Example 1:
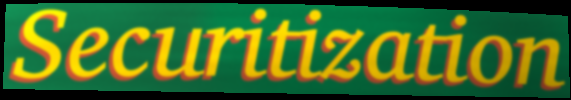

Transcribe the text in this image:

Securitization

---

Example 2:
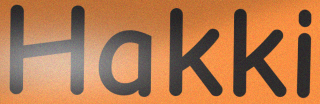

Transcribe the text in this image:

Hakki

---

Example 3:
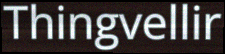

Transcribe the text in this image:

Thingvellir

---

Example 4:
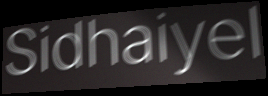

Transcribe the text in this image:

Sidhaiyel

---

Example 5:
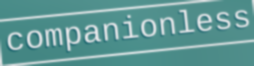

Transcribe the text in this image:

companionless